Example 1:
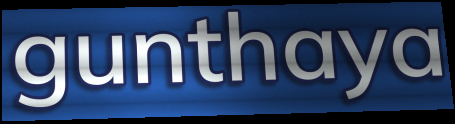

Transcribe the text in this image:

gunthaya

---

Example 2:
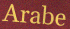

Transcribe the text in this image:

Arabe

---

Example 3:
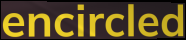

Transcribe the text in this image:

encircled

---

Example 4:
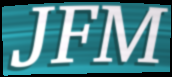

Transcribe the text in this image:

JFM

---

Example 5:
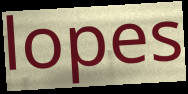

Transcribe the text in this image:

lopes